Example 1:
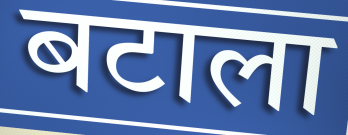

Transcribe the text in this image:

बटाला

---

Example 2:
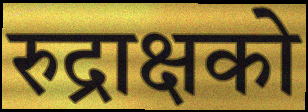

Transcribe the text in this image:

रुद्राक्षको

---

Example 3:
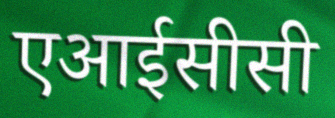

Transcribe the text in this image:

एआईसीसी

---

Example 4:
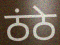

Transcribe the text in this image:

ठंठे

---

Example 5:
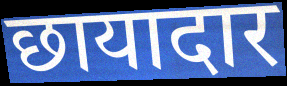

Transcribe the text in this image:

छायादार